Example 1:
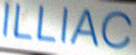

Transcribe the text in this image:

ILLIAC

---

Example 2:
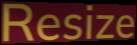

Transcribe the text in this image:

Resize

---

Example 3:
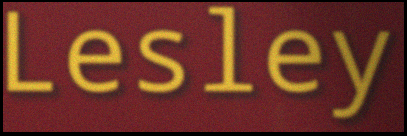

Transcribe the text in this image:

Lesley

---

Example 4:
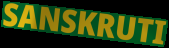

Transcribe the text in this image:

SANSKRUTI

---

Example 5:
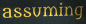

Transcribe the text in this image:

assuming